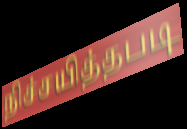
நிச்சயித்தபடி